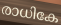
രാധികേ